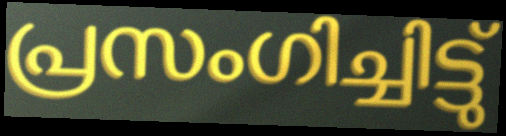
പ്രസംഗിച്ചിട്ടു്